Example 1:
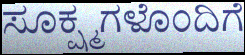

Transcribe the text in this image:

ಸೂಕ್ಷ್ಮಗಳೊಂದಿಗೆ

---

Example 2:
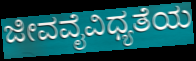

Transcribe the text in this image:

ಜೀವವೈವಿಧ್ಯತೆಯ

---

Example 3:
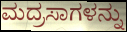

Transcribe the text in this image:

ಮದ್ರಸಾಗಳನ್ನು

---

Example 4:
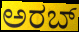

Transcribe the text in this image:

ಅರಬ್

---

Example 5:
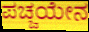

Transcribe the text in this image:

ಪಚ್ಚಯೇನ